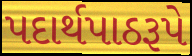
પદાર્થપાઠરૂપે